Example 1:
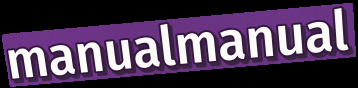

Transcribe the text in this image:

manualmanual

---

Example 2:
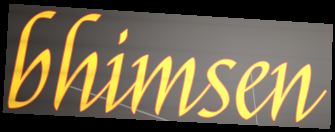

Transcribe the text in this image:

bhimsen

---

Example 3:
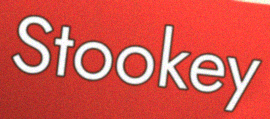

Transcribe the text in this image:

Stookey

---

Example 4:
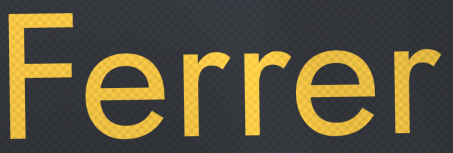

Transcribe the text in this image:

Ferrer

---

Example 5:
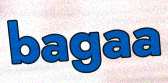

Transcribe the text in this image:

bagaa